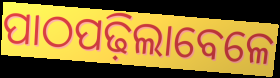
ପାଠପଢ଼ିଲାବେଳେ